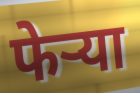
फेर्‍या